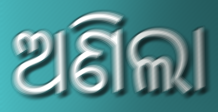
ଅଣିଲା